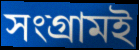
সংগ্রামই